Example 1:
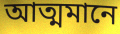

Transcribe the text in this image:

আত্মমানে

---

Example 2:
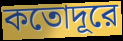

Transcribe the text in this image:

কতোদূরে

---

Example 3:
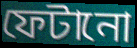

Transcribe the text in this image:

ফেটানো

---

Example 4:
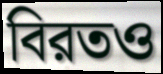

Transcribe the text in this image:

বিরতও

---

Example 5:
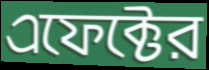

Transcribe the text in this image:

এফেক্টের